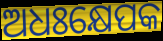
ଅଧଃକ୍ଷେପକ